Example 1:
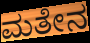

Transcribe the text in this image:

ಮತೇನ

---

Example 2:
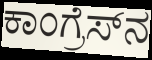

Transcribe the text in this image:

ಕಾಂಗ್ರೆಸ್‍ನ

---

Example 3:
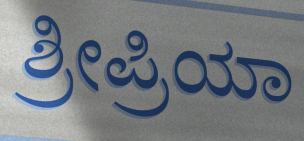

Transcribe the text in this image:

ಶ್ರೀಪ್ರಿಯಾ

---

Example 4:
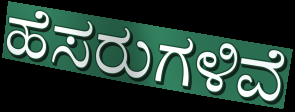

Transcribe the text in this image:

ಹೆಸರುಗಳಿವೆ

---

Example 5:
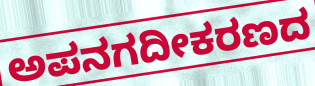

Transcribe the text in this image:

ಅಪನಗದೀಕರಣದ